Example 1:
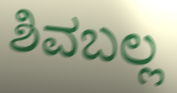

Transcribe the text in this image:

ಶಿವಬಲ್ಲ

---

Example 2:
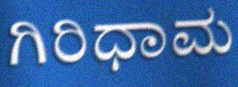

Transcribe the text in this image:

ಗಿರಿಧಾಮ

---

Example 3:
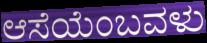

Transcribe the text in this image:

ಆಸೆಯೆಂಬವಳು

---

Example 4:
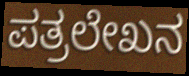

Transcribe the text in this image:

ಪತ್ರಲೇಖನ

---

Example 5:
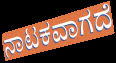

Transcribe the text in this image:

ನಾಟಕವಾಗದೆ